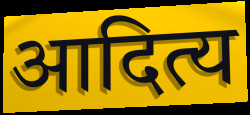
आदित्‍य